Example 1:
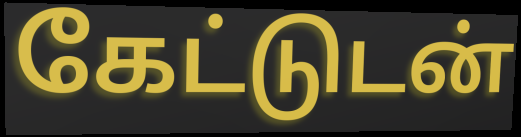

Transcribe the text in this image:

கேட்டுடன்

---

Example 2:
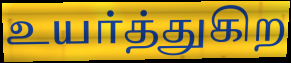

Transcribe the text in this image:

உயர்த்துகிற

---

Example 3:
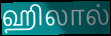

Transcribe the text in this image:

ஹிலால்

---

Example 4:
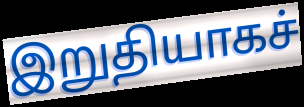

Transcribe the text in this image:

இறுதியாகச்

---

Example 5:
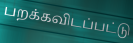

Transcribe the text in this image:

பறக்கவிடப்பட்டு